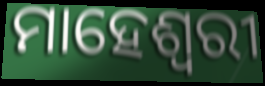
ମାହେଶ୍ଵରୀ